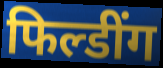
फिल्डींग